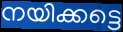
നയിക്കട്ടെ